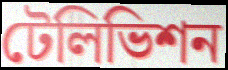
টেলিভিশন